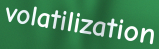
volatilization